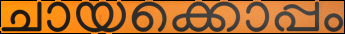
ചായക്കൊപ്പം